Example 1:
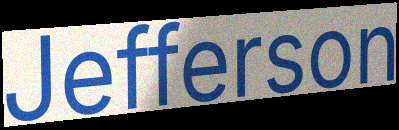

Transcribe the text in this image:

Jefferson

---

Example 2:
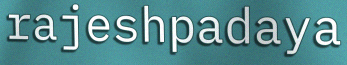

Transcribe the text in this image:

rajeshpadaya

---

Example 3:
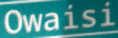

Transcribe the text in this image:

Owaisi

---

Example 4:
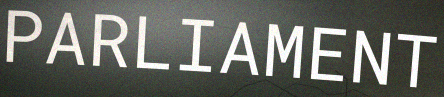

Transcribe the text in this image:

PARLIAMENT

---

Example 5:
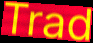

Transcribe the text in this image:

Trad